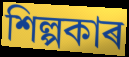
শিল্পকাৰ